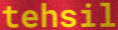
tehsil